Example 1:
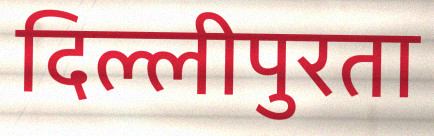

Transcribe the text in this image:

दिल्लीपुरता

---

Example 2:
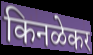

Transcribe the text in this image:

किनळेकर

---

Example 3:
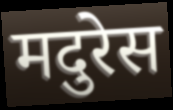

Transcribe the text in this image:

मदुरेस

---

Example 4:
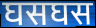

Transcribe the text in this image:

घसघस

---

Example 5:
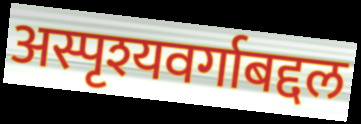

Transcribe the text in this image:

अस्पृश्यवर्गाबद्दल